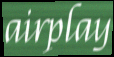
airplay